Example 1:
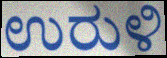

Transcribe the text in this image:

ಉರುಳಿ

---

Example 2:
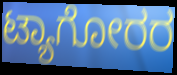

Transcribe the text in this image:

ಟ್ಯಾಗೋರರ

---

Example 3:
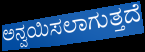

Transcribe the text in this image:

ಅನ್ವಯಿಸಲಾಗುತ್ತದೆ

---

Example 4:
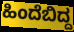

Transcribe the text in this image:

ಹಿಂದೆಬಿದ್ದ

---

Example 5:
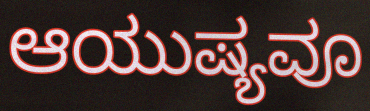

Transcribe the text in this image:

ಆಯುಷ್ಯವೂ